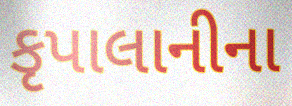
કૃપાલાનીના